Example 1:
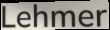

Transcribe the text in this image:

Lehmer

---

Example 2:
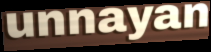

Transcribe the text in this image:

unnayan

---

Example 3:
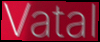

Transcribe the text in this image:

Vatal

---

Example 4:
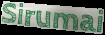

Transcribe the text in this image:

Sirumai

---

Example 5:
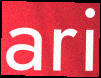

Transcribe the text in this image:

ari